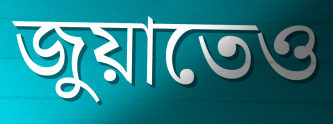
জুয়াতেও